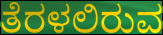
ತೆರಳಲಿರುವ